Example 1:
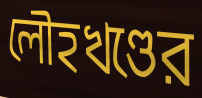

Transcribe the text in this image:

লৌহখণ্ডের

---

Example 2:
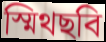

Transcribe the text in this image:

স্মিথছবি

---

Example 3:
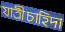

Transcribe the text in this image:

যাত্রীচাহিদা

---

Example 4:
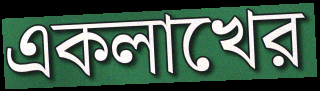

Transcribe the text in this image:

একলাখের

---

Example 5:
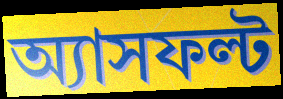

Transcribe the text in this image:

অ্যাসফল্ট